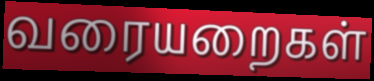
வரையறைகள்